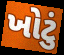
ખોટું